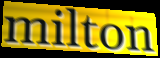
milton